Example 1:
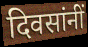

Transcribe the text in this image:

दिवसांनीं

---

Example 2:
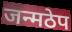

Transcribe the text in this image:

जन्मठेप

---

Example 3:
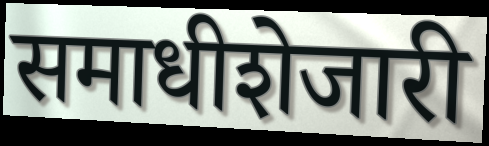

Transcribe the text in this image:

समाधीशेजारी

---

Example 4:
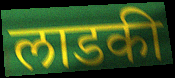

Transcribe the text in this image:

लाडकी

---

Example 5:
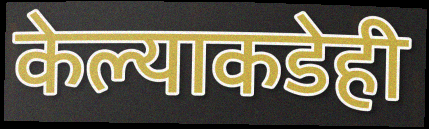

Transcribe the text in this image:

केल्याकडेही